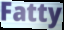
Fatty